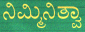
ನಿಮ್ಮಿನಿತ್ವಾ